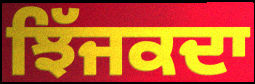
ਝਿੱਜਕਦਾ